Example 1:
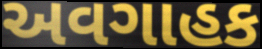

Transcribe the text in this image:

અવગાહક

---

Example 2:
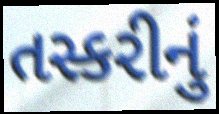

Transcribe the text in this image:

તસ્કરીનું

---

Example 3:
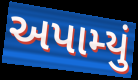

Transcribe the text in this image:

અપામ્યું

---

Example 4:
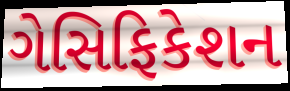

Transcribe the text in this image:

ગેસિફિકેશન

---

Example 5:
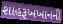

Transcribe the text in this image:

શાહરૂખખાનની